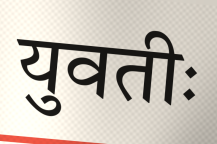
युवतीः